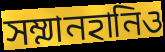
সম্মানহানিও